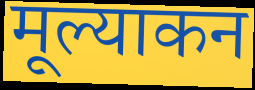
मूल्याकन